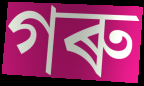
গৰু